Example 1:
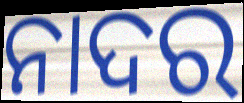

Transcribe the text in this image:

ନାଦର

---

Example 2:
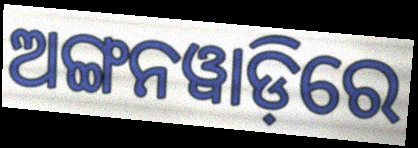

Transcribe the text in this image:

ଅଙ୍ଗନୱାଡ଼ିରେ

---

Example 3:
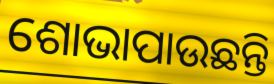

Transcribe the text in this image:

ଶୋଭାପାଉଛନ୍ତି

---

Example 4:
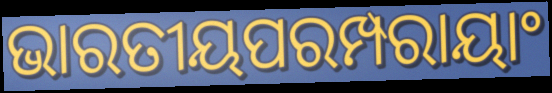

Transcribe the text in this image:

ଭାରତୀୟପରମ୍ପରାୟାଂ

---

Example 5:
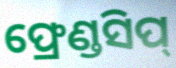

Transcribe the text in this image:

ଫ୍ରେଣ୍ଡସିପ୍